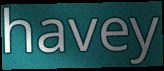
havey